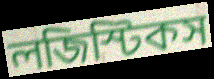
লজিস্টিকস